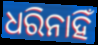
ଧରିନାହିଁ